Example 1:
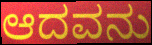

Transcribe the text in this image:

ಆದವನು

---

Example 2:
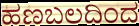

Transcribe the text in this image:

ಹಣಬಲದಿಂದ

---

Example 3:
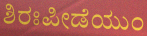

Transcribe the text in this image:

ಶಿರಃಪೀಡೆಯುಂ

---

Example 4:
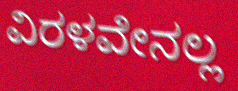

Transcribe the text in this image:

ವಿರಳವೇನಲ್ಲ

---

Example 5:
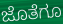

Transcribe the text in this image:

ಜೊತೆಗೂ